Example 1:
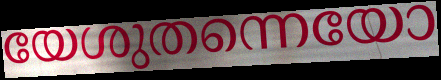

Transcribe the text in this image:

യേശുതന്നെയോ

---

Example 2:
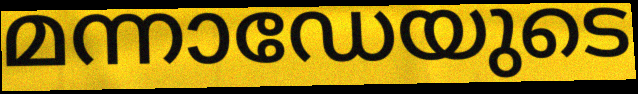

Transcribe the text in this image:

മന്നാഡേയുടെ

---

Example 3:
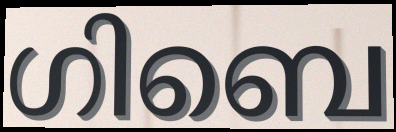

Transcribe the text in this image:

ഗിബെ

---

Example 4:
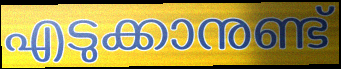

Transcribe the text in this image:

എടുക്കാനുണ്ട്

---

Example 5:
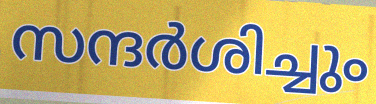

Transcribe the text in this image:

സന്ദർശിച്ചും